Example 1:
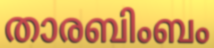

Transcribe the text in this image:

താരബിംബം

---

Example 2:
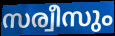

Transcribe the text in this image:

സര്വീസും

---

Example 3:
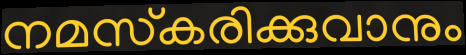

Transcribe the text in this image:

നമസ്‌കരിക്കുവാനും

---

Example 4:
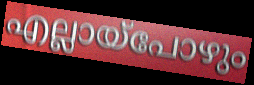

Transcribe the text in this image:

എല്ലായ്പോഴും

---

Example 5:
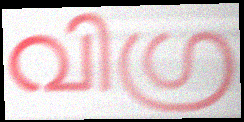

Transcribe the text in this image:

വിഗ്ര